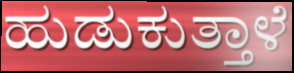
ಹುಡುಕುತ್ತಾಳೆ